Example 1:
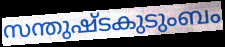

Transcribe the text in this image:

സന്തുഷ്ടകുടുംബം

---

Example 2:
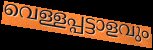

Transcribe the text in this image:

വെള്ളപ്പട്ടാളവും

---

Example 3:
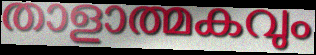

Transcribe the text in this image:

താളാത്മകവും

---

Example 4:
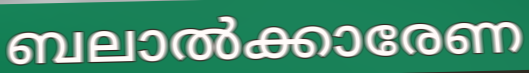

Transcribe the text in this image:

ബലാൽക്കാരേണ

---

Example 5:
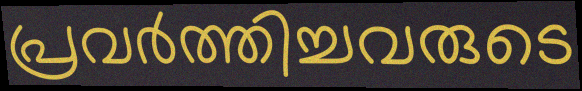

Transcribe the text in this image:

പ്രവർത്തിച്ചവരുടെ